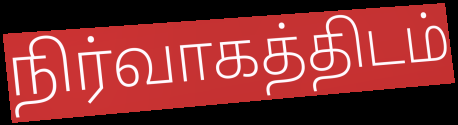
நிர்வாகத்திடம்